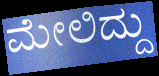
ಮೇಲಿದ್ದು